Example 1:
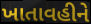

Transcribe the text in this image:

ખાતાવહીને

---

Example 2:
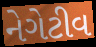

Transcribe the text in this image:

નેગેટીવ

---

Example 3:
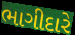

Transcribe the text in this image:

ભાગીદારે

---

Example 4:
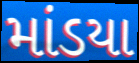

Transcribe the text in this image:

માંડયા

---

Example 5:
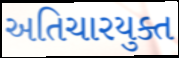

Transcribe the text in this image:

અતિચારયુક્ત